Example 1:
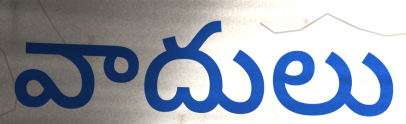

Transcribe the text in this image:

వాదులు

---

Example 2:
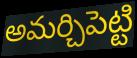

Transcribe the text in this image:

అమర్చిపెట్టి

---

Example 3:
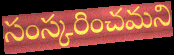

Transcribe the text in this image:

సంస్కరించమని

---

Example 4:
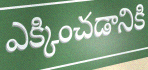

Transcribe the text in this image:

ఎక్కించడానికి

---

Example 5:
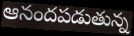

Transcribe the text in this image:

ఆనందపడుతున్న